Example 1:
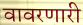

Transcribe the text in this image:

वावरणारी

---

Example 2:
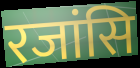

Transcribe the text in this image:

रजांसि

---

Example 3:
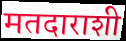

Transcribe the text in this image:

मतदाराशी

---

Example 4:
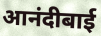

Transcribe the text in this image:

आनंदीबाई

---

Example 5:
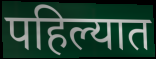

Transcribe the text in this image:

पहिल्यात